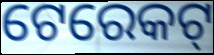
ଟେରେକଟ୍